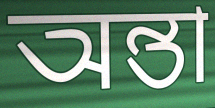
অন্তা